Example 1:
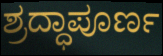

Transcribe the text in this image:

ಶ್ರದ್ಧಾಪೂರ್ಣ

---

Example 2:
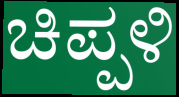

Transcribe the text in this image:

ಚಿಪ್ಪಳಿ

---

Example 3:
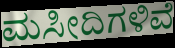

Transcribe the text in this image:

ಮಸೀದಿಗಳಿವೆ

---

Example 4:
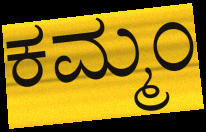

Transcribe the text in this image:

ಕಮ್ಮಂ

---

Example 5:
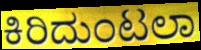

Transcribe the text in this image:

ಕಿರಿದುಂಟಲಾ